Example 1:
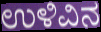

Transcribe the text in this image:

ಉಳಿವಿನ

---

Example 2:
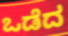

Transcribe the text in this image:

ಒಡೆದ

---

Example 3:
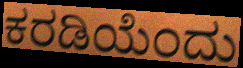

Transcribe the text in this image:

ಕರಡಿಯೆಂದು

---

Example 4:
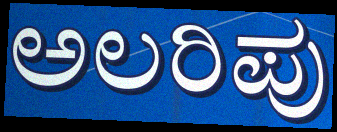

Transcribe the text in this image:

ಅಲರಿಪು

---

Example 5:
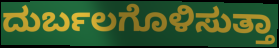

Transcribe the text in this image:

ದುರ್ಬಲಗೊಳಿಸುತ್ತಾ